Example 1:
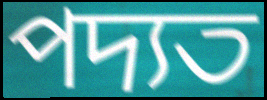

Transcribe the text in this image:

পদ্যত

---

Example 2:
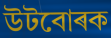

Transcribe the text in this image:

উটবোৰক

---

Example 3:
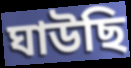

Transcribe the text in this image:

ঘাউছি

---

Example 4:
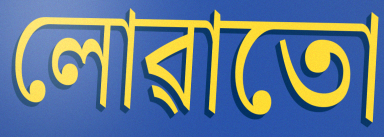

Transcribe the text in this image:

লোৱাতো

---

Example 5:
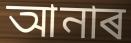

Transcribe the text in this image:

আনাৰ